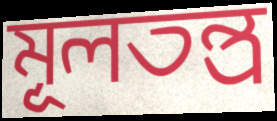
মূলতন্ত্র